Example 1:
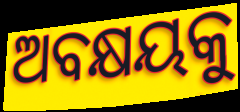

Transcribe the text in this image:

ଅବକ୍ଷୟକୁ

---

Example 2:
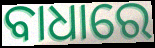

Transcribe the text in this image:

ବାଧାରେ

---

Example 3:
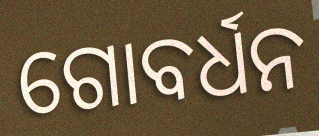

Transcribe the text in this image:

ଗୋବର୍ଧନ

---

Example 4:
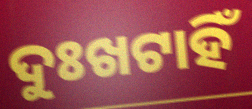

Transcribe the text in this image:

ଦୁଃଖଟାହିଁ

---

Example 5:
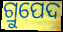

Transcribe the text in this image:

ଗ୍ରୁପେଦ